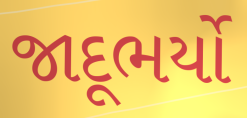
જાદૂભર્યો